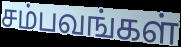
சம்பவங்கள்